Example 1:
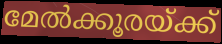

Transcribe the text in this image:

മേൽക്കൂരയ്ക്ക്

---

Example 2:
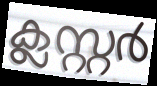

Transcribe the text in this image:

ക്ലസ്റ്റർ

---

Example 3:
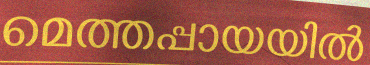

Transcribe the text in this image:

മെത്തപ്പായയിൽ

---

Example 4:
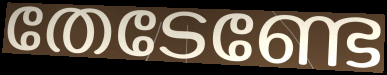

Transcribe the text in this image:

തേടേണ്ടേ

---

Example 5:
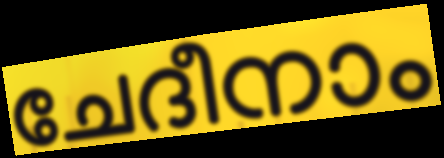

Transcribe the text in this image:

ചേദീനാം